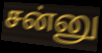
சன்னு